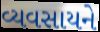
વ્યવસાયને